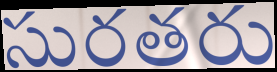
సురతరు